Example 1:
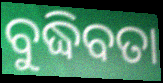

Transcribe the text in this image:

ବୁଦ୍ଧିବତା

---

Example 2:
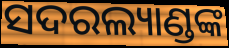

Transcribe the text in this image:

ସଦରଲ୍ୟାଣ୍ଡଙ୍କ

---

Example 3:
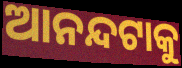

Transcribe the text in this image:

ଆନନ୍ଦଟାକୁ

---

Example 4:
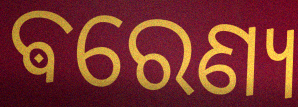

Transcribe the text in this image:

ଵରେଣ୍ୟ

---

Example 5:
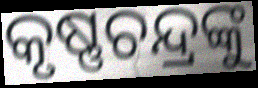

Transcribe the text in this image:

କୃଷ୍ଣଚନ୍ଦ୍ରଙ୍କୁ